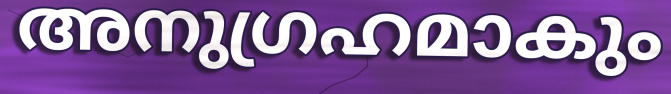
അനുഗ്രഹമാകും